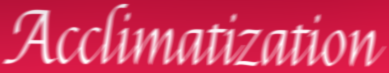
Acclimatization